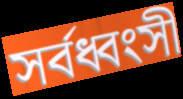
সর্বধ্বংসী